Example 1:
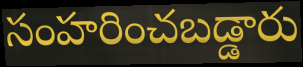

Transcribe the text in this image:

సంహరించబడ్డారు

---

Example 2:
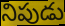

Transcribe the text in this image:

నిపుడు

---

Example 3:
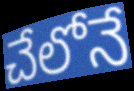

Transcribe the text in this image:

చేలోనే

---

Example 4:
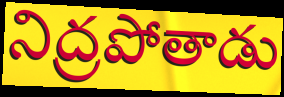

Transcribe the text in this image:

నిద్రపోతాడు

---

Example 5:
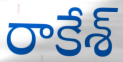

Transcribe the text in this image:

రాకేశ్